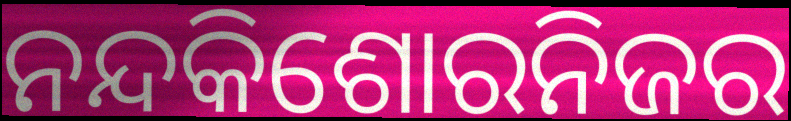
ନନ୍ଦକିଶୋରନିଜର